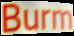
Burm